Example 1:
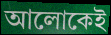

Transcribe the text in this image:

আলোকেই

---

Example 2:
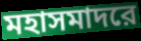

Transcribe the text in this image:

মহাসমাদরে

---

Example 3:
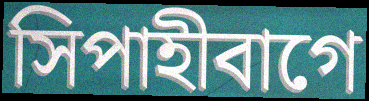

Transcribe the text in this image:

সিপাহীবাগে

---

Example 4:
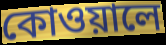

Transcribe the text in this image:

কোওয়ালে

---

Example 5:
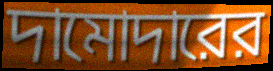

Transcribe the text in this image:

দামোদারের